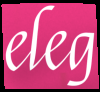
eleg